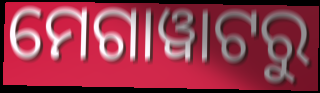
ମେଗାୱାଟରୁ